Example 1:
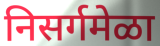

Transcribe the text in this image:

निसर्गमेळा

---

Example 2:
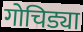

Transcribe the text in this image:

गोचिड्या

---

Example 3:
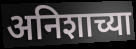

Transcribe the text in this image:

अनिशाच्या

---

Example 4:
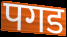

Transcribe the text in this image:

पगड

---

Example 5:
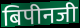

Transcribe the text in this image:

बिपीनजी